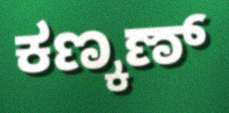
ಕಣ್ಕಣ್